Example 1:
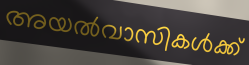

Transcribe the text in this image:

അയൽവാസികൾക്ക്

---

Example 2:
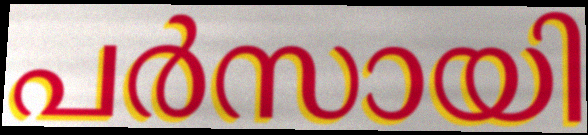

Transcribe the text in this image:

പർസായി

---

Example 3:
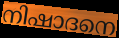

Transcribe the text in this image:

നിഷാദനെ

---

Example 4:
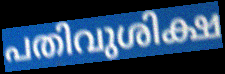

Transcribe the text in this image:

പതിവുശിക്ഷ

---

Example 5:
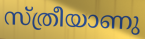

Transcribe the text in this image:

സ്ത്രീയാണു